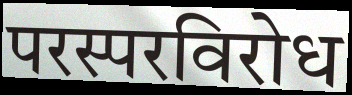
परस्परविरोध